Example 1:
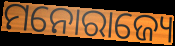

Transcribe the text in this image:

ମନୋରାଜ୍ୟେ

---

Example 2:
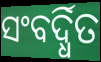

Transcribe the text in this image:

ସଂବର୍ଦ୍ଧିତ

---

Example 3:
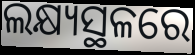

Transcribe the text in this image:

ଲକ୍ଷ୍ୟସ୍ଥଳରେ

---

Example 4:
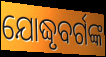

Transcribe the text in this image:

ଯୋଦ୍ଧୃବର୍ଗଙ୍କ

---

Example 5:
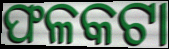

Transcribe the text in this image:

ଫଳକଟା